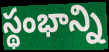
స్థంభాన్ని